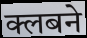
क्‍लबने